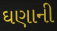
ઘણાની